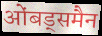
ओंबड्समैन